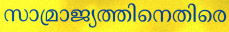
സാമ്രാജ്യത്തിനെതിരെ